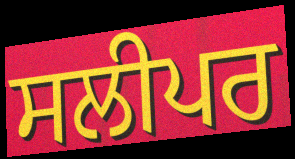
ਸਲੀਪਰ